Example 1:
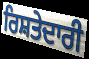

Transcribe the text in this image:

ਰਿਸ਼ਤੇਦਾਰੀ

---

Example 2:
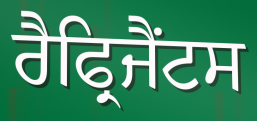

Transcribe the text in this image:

ਰੈਫ੍ਰਿਜੈਂਟਸ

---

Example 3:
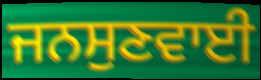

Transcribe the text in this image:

ਜਨਸੁਣਵਾਈ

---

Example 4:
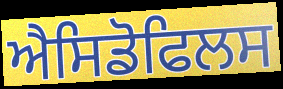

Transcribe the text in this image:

ਐਸਿਡੋਫਿਲਸ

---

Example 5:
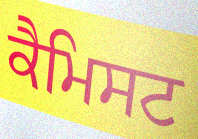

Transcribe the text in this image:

ਕੈਮਿਸਟ